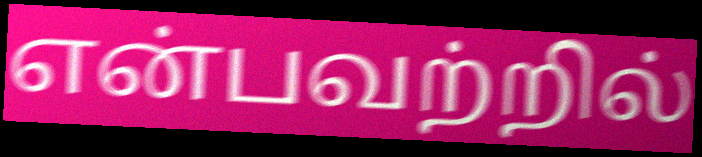
என்பவற்றில்